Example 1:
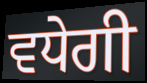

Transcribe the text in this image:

ਵਧੇਗੀ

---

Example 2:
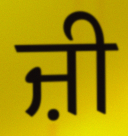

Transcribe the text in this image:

ਜ਼ੀ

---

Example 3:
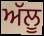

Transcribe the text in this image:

ਅੱਲੂ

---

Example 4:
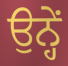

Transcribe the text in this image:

ਉਨ੍ਹੇਂ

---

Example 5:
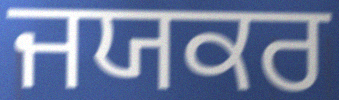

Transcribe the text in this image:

ਜਯਕਰ